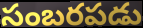
సంబరపడు